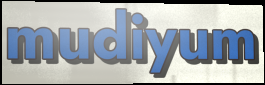
mudiyum